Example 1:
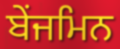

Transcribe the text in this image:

ਬੇਂਜਮਿਨ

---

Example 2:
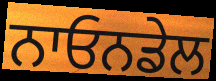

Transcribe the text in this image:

ਨਾਓਨਡੇਲ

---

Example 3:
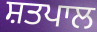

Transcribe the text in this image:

ਸ਼ਤਪਾਲ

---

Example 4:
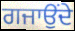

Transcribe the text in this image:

ਗਜਾਉਂਦੇ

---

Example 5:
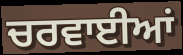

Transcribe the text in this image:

ਚਰਵਾਈਆਂ